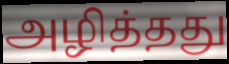
அழித்தது